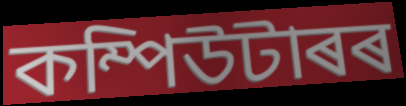
কম্পিউটাৰৰ